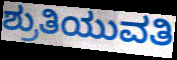
ಶ್ರುತಿಯುವತಿ